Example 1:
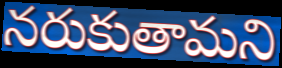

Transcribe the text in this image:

నరుకుతామని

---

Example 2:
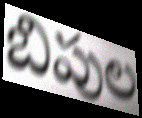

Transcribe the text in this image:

బిపుల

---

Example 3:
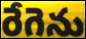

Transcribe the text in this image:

రేగెను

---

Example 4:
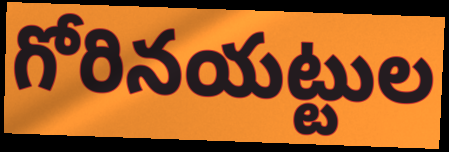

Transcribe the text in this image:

గోరినయట్టుల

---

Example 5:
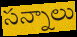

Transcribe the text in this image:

సన్నాలు